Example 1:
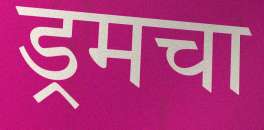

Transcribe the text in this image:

ड्रमचा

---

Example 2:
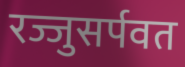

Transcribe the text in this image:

रज्जुसर्पवत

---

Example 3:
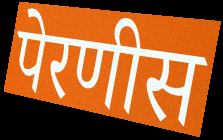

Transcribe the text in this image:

पेरणीस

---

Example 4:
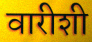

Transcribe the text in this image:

वारीशी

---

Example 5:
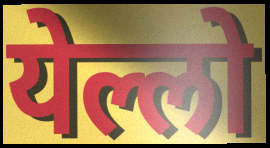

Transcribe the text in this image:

येल्लो